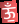
ऊँ॒